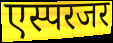
एस्परजर